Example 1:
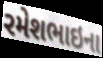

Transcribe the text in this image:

રમેશભાઇના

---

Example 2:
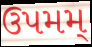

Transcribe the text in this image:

ઉપમમ્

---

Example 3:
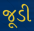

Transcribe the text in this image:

જૂડી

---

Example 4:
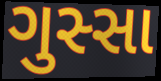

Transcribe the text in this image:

ગુસ્સા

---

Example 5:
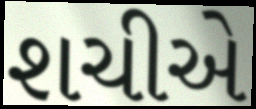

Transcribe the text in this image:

શચીએ